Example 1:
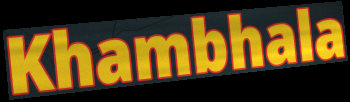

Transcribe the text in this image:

Khambhala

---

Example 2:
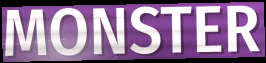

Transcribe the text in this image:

MONSTER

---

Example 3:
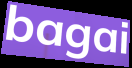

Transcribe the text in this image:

bagai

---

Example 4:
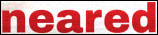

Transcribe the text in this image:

neared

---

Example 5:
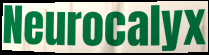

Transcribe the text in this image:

Neurocalyx